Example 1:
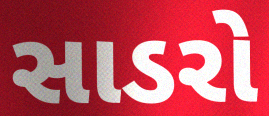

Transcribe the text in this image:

સાડરો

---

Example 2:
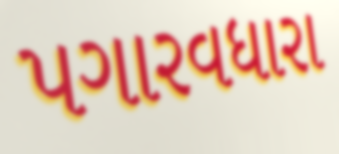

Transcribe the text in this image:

પગારવધારા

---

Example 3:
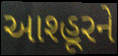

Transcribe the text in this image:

આશ્હૂરને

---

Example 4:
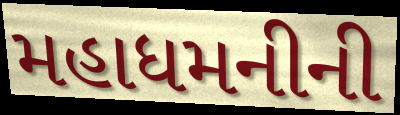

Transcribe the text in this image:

મહાધમનીની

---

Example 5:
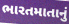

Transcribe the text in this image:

ભારતમાતાનું